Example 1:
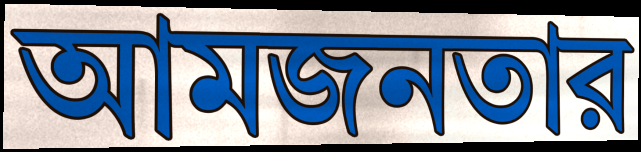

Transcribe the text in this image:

আমজনতার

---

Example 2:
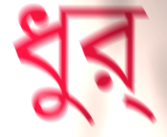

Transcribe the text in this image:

ধুর্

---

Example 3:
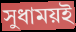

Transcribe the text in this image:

সুধাময়ই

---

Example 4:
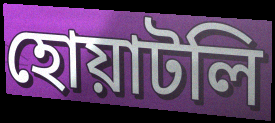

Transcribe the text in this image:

হোয়াটলি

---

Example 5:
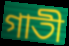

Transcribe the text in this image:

গাতী